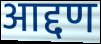
आद्दण